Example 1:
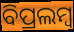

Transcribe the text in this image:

ବିପ୍ରଲମ୍ବ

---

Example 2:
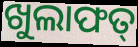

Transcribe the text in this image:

ଖୁଲାଫତ୍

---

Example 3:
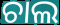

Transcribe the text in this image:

ଚାଲ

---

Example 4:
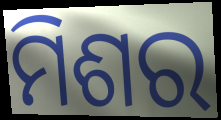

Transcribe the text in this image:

ମିଶର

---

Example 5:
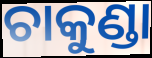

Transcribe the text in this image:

ଚାକୁଣ୍ଡା